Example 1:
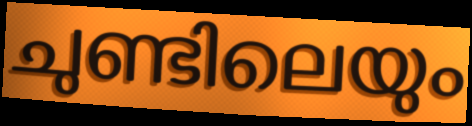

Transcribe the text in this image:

ചുണ്ടിലെയും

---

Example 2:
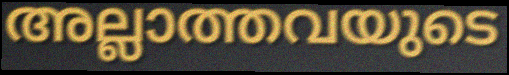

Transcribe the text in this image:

അല്ലാത്തവയുടെ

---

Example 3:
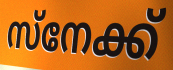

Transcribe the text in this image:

സ്നേക്ക്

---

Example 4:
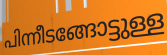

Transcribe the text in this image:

പിന്നീടങ്ങോട്ടുള്ള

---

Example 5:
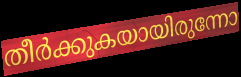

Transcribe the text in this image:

തീർക്കുകയായിരുന്നോ